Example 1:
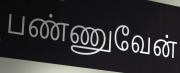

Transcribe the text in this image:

பண்ணுவேன்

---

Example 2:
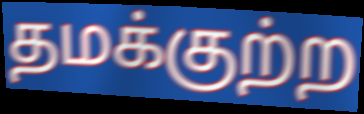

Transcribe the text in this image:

தமக்குற்ற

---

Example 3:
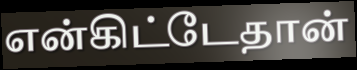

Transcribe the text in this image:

என்கிட்டேதான்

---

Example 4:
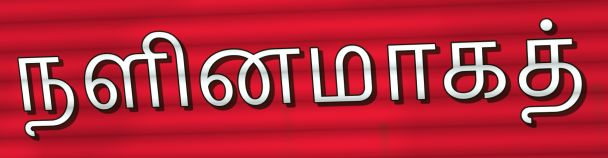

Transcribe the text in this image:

நளினமாகத்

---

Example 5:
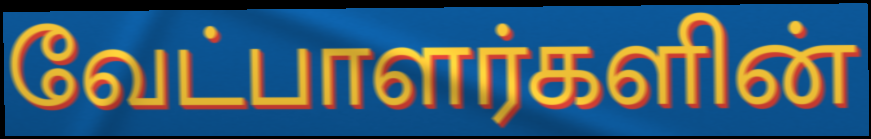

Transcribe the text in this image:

வேட்பாளர்களின்